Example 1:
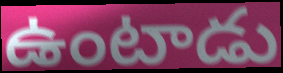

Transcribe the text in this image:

ఉంటాడు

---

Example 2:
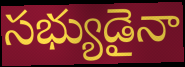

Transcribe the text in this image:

సభ్యుడైనా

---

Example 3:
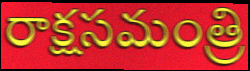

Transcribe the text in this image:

రాక్షసమంత్రి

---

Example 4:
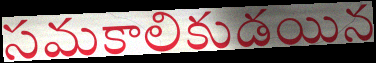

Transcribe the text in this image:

సమకాలికుడయిన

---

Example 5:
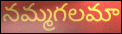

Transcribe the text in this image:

నమ్మగలమా